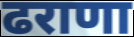
ढराणा